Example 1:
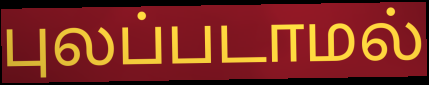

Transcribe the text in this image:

புலப்படாமல்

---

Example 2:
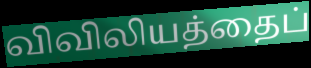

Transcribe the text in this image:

விவிலியத்தைப்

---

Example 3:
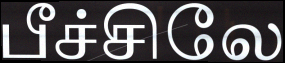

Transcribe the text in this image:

பீச்சிலே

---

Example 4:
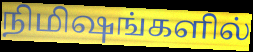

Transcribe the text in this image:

நிமிஷங்களில்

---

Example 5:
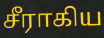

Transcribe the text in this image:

சீராகிய